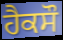
ਹੈਕਸੌ